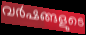
വർഷങ്ങളുടെ